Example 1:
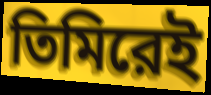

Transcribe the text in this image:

তিমিরেই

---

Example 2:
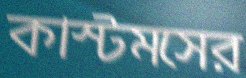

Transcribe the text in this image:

কাস্টমসের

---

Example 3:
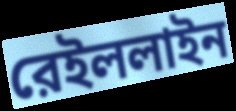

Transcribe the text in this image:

রেইললাইন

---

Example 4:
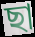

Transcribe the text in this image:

ছা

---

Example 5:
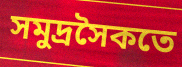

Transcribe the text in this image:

সমুদ্রসৈকতে